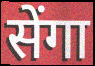
सेंगा